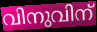
വിനുവിന്